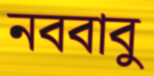
নববাবু